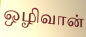
ஒழிவான்